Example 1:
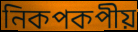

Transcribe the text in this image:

নিকপকপীয়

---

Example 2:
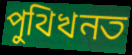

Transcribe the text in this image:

পুথিখনত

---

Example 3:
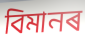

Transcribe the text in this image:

বিমানৰ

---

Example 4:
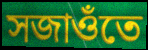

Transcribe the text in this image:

সজাওঁতে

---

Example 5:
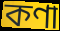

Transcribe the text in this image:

কণা